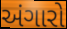
અંગારો